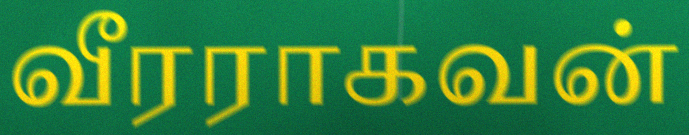
வீரராகவன்